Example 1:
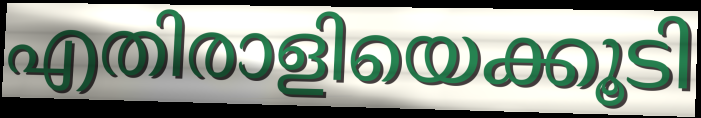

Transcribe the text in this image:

എതിരാളിയെക്കൂടി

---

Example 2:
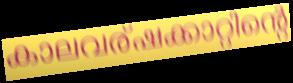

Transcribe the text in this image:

കാലവര്ഷക്കാറ്റിന്റെ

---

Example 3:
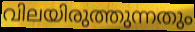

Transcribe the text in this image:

വിലയിരുത്തുന്നതും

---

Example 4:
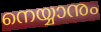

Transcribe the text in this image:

നെയ്യാനും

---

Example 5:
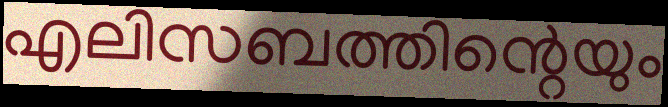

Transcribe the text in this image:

എലിസബത്തിന്റെയും